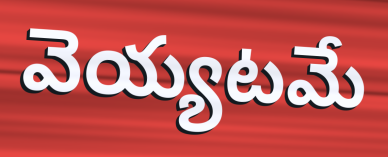
వెయ్యటమే